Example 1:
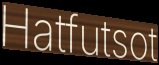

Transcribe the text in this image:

Hatfutsot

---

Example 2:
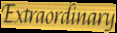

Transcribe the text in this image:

Extraordinary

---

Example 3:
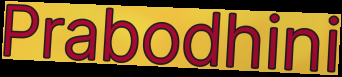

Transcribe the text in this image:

Prabodhini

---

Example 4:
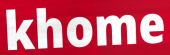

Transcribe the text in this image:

khome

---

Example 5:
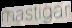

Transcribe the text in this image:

mastigar